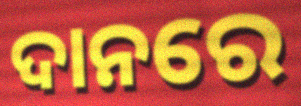
ଦାନରେ